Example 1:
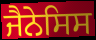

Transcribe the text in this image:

ਜੈਨੇਸਿਸ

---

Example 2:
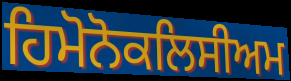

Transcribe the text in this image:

ਹਿਮੋਨੋਕਲਿਸੀਅਮ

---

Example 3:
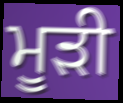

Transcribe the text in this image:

ਮੂੜੀ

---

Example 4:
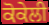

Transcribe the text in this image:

ਕੋਕੇਲੀ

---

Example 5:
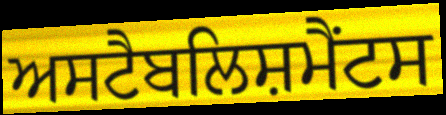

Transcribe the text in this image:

ਅਸਟੈਬਲਿਸ਼ਮੈਂਟਸ